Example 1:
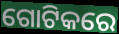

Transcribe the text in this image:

ଗୋଟିକରେ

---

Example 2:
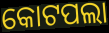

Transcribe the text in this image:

କୋଟପଲା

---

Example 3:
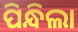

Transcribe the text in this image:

ପିନ୍ଧିଲା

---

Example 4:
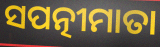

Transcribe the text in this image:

ସପତ୍ନୀମାତା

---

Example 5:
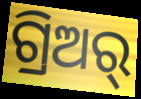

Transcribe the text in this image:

ଗ୍ରିଅର୍